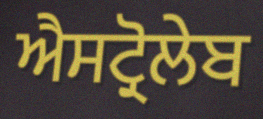
ਐਸਟ੍ਰੋਲੇਬ